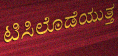
ಟಿಸಿಲೊಡೆಯುತ್ತ